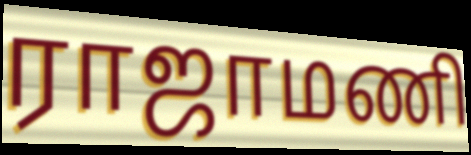
ராஜாமணி